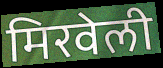
मिरवेली